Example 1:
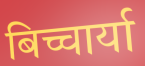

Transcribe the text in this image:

बिच्चार्या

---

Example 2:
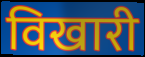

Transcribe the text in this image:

विखारी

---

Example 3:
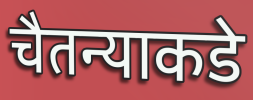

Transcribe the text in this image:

चैतन्याकडे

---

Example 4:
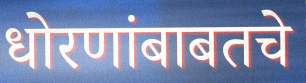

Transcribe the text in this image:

धोरणांबाबतचे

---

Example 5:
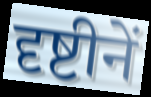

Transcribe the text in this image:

दृष्टीनें